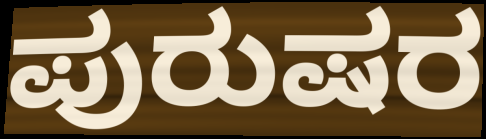
ಪುರುಷರ